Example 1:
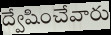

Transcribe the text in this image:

ద్వేషించేవారు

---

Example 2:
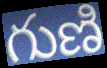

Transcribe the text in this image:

గుణి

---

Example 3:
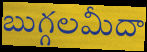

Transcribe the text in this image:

బుగ్గలమీదా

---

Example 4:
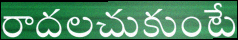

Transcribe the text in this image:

రాదలచుకుంటే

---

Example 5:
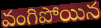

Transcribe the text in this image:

వంగిపోయిన